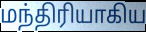
மந்திரியாகிய